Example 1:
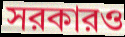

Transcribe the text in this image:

সরকারও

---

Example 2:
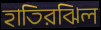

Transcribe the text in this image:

হাতিরঝিল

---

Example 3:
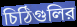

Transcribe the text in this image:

চিঠিগুলির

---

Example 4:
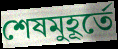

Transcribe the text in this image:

শেষমুহূর্তে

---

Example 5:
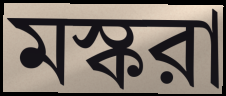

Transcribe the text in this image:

মস্করা